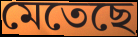
মেতেছে